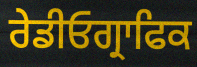
ਰੇਡੀਓਗ੍ਰਾਫਿਕ